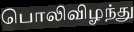
பொலிவிழந்து